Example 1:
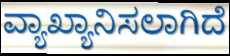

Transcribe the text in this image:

ವ್ಯಾಖ್ಯಾನಿಸಲಾಗಿದೆ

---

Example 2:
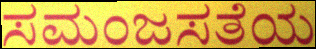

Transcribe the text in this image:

ಸಮಂಜಸತೆಯ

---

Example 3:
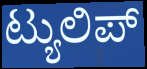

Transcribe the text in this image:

ಟ್ಯುಲಿಪ್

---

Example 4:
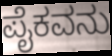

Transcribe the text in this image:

ಪೈಕವನು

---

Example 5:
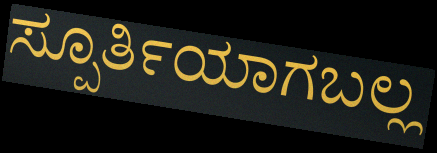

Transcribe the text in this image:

ಸ್ಪೂರ್ತಿಯಾಗಬಲ್ಲ